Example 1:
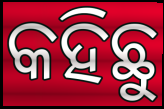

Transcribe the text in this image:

କହିଛୁ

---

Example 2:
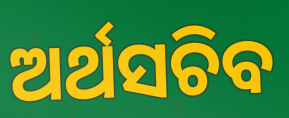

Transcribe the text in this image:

ଅର୍ଥସଚିବ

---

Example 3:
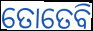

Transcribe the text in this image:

ତୋତେବି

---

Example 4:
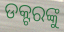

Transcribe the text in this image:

ଡକ୍ଟରଙ୍କୁ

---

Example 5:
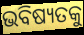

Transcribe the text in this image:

ଭବିଷ୍ୟତକୁ